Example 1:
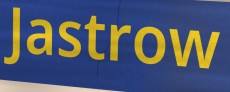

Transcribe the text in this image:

Jastrow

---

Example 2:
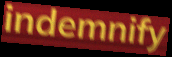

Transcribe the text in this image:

indemnify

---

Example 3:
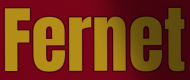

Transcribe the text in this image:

Fernet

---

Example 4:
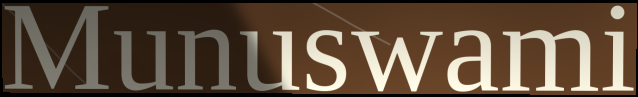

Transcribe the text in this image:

Munuswami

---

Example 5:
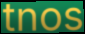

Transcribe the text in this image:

tnos